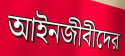
আইনজীবীদের